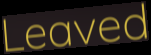
Leaved